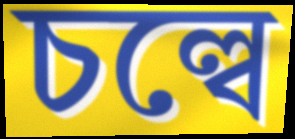
চল্বে